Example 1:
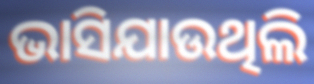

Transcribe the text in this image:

ଭାସିଯାଉଥିଲି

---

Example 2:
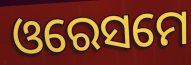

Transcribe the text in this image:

ଓରେସମେ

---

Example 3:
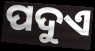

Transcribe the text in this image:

ପଦୁଏ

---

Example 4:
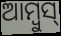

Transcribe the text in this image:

ଆମ୍ବୁସ୍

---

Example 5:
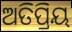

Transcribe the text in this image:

ଅତିପ୍ରିୟ